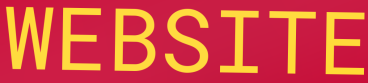
WEBSITE